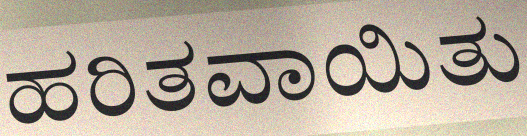
ಹರಿತವಾಯಿತು